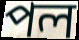
পল